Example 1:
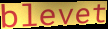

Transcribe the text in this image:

blevet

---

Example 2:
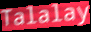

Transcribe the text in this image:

Talalay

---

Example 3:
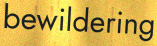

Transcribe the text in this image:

bewildering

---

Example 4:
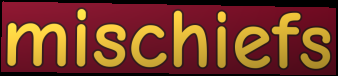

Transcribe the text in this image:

mischiefs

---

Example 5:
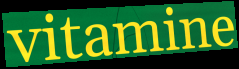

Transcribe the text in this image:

vitamine